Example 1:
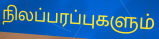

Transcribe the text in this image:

நிலப்பரப்புகளும்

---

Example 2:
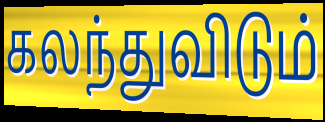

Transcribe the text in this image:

கலந்துவிடும்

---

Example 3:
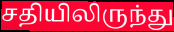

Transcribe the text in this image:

சதியிலிருந்து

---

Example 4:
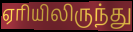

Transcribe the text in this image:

ஏரியிலிருந்து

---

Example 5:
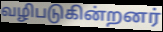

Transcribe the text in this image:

வழிபடுகின்றனர்